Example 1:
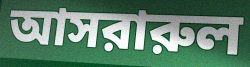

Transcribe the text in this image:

আসরারুল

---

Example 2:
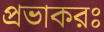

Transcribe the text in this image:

প্রভাকরঃ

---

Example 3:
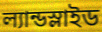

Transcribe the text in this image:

ল্যান্ডস্লাইড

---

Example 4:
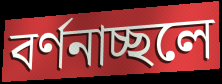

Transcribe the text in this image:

বর্ণনাচ্ছলে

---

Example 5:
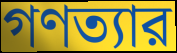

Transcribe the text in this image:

গণত্যার